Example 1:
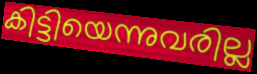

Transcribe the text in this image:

കിട്ടിയെന്നുവരില്ല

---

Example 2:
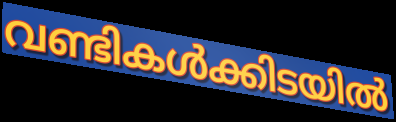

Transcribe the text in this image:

വണ്ടികൾക്കിടയിൽ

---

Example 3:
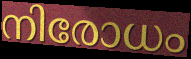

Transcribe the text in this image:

നിരോധം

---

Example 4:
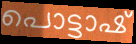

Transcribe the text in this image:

പൊട്ടാഷ്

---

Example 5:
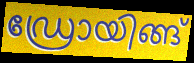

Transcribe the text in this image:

ഡ്രോയിങ്ങ്